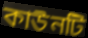
কাউনটি